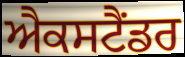
ਐਕਸਟੈਂਡਰ